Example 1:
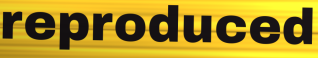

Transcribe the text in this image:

reproduced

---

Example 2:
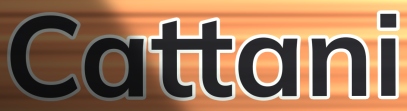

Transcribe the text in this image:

Cattani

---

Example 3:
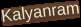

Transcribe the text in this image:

Kalyanram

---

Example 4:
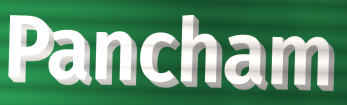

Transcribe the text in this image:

Pancham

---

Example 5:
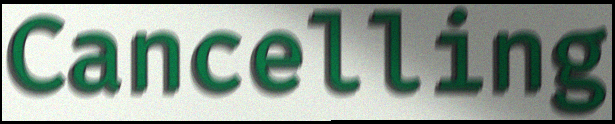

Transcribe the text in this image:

Cancelling